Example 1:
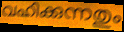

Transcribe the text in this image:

വഹിക്കുന്നതും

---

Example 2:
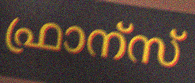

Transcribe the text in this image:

ഫ്രാന്സ്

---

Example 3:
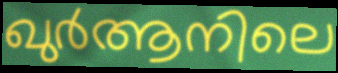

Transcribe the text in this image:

ഖുർആനിലെ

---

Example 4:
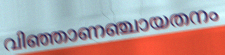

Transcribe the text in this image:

വിഞ്ഞാണഞ്ചായതനം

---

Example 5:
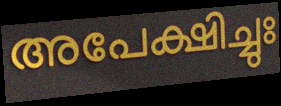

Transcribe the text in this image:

അപേക്ഷിച്ചുഃ